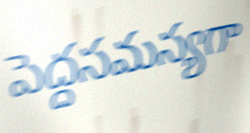
పెద్దసమస్యగా